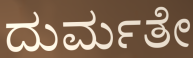
ದುರ್ಮತೇ